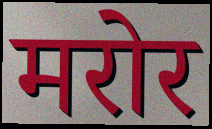
मरोर